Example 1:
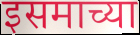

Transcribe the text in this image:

इसमाच्या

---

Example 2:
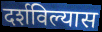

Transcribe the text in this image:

दर्शविल्यास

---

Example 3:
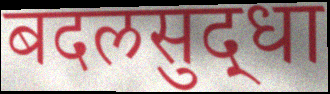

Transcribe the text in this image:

बदलसुद्धा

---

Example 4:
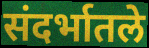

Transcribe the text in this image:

संदर्भातले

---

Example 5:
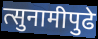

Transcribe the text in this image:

त्सुनामीपुढे